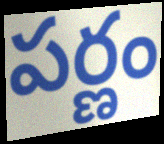
పర్ణం